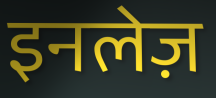
इनलेज़